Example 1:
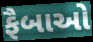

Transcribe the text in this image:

ફૈબાઓ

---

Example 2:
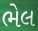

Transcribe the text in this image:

ભેલ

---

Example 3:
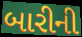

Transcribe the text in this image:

બારીની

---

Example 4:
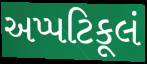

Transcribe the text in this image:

અપ્પટિકૂલં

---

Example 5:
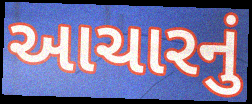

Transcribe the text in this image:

આચારનું